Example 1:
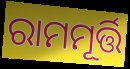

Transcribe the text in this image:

ରାମମୂର୍ତ୍ତି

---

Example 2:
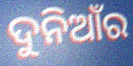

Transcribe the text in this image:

ଦୁନିଆଁର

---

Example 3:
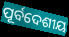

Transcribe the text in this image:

ପୂର୍ବଦେଶୀୟ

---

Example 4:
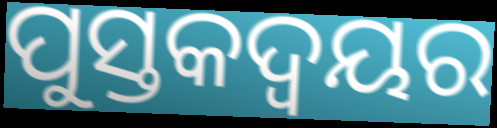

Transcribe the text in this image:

ପୁସ୍ତକଦ୍ୱୟର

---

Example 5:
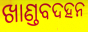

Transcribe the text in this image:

ଖାଣ୍ଡବଦହନ